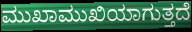
ಮುಖಾಮುಖಿಯಾಗುತ್ತದೆ